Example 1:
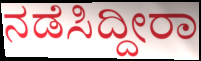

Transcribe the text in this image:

ನಡೆಸಿದ್ದೀರಾ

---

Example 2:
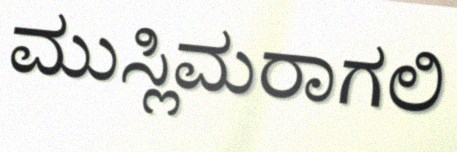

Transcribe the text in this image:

ಮುಸ್ಲಿಮರಾಗಲಿ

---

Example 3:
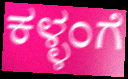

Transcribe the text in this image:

ಕಳ್ಳಂಗೆ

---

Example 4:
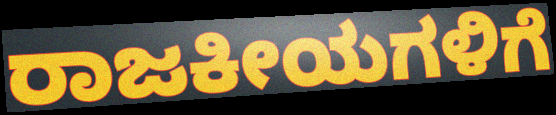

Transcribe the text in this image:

ರಾಜಕೀಯಗಳಿಗೆ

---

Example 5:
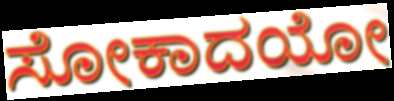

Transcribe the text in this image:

ಸೋಕಾದಯೋ